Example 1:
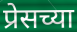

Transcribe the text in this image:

प्रेसच्या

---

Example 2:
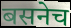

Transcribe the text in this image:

बसनेच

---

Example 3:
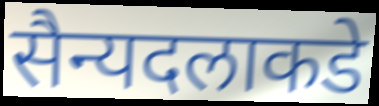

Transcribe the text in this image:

सैन्यदलाकडे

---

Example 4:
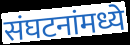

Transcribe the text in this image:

संघटनांमध्ये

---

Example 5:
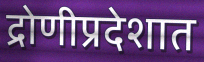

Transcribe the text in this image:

द्रोणीप्रदेशात